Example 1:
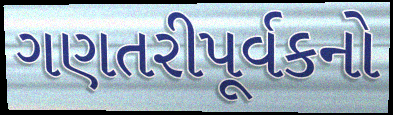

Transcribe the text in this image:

ગણતરીપૂર્વકનો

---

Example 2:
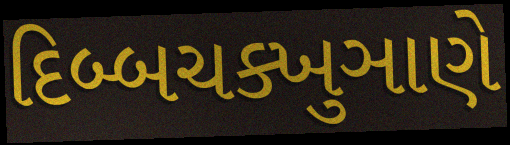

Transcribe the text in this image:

દિબ્બચક્ખુઞાણે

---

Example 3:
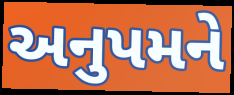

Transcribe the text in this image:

અનુપમને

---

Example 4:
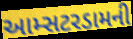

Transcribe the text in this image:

આમ્સટરડામની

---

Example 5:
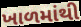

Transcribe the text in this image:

ખાળમાંથી